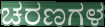
ಚರಣಗಳ